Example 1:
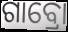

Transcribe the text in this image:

ଗାବ୍ରୋ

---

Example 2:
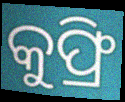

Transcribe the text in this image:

କୁଫ୍ରି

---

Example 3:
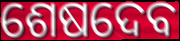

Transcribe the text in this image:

ଶେଷଦେବ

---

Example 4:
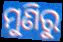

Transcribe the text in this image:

ମୁଣିରୁ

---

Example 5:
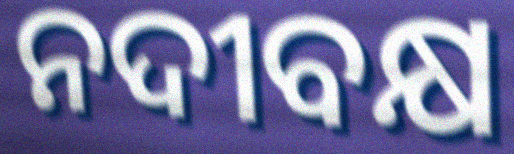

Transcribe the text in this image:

ନଦୀବକ୍ଷ